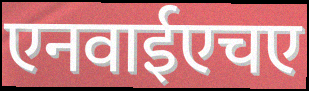
एनवाईएचए